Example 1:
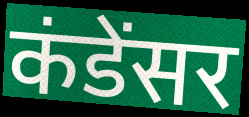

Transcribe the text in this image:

कंडेंसर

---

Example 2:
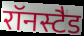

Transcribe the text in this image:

रॉनस्टैड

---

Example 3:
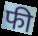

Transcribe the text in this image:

फी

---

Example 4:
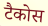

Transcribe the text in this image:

टैकोस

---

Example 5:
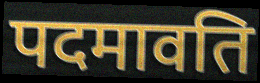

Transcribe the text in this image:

पदमावति